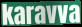
karavva